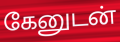
கேனுடன்